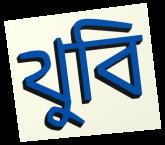
থুবি